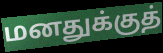
மனதுக்குத்